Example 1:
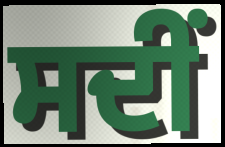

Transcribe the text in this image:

ਸਦੀਂ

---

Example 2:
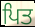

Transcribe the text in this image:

ਪਿਤ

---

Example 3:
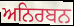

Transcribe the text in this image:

ਅਨਿਰਬਨ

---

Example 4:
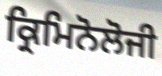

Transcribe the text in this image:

ਕ੍ਰਿਮਿਨੋਲੋਜੀ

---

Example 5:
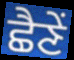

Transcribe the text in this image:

ਛੈਣੇਂ